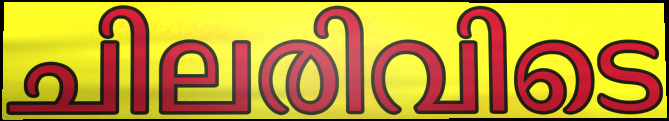
ചിലരിവിടെ